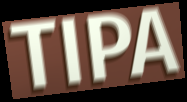
TIPA